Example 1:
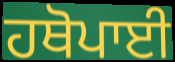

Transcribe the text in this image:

ਹਥੋਪਾਈ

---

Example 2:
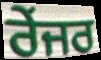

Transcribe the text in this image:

ਰੇਂਜਰ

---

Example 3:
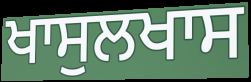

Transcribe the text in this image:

ਖਾਸੁਲਖਾਸ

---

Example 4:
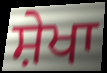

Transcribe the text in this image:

ਸ਼ੇਖਾ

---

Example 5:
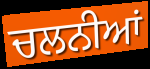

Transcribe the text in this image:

ਚਲਨੀਆਂ